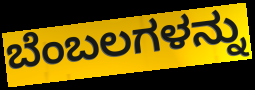
ಬೆಂಬಲಗಳನ್ನು